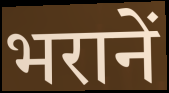
भरानें